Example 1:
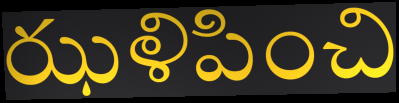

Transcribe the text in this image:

ఝళిపించి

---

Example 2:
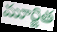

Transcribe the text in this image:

మూర్జిత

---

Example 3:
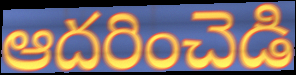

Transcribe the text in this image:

ఆదరించెడి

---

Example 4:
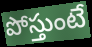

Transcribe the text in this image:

పోస్తుంటే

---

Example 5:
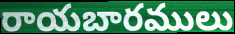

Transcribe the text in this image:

రాయబారములు